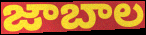
జాబాల